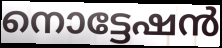
നൊട്ടേഷൻ